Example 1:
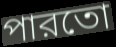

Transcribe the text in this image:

পারতো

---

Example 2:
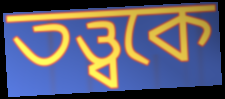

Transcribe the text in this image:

তত্ত্বকে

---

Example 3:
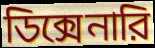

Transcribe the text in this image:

ডিক্সেনারি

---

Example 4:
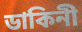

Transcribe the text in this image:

ডাকিনী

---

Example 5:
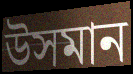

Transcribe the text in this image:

উসমান